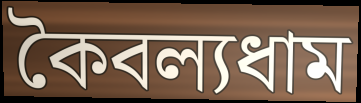
কৈবল্যধাম